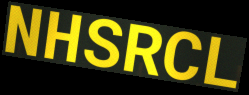
NHSRCL